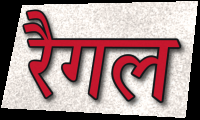
रैगल